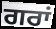
ਗਰਾਂ